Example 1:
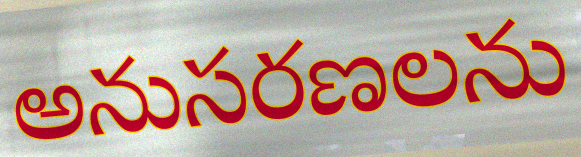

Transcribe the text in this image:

అనుసరణలను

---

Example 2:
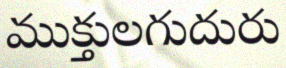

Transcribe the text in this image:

ముక్తులగుదురు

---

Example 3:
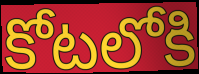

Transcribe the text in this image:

కోటలోకి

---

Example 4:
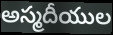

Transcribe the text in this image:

అస్మదీయుల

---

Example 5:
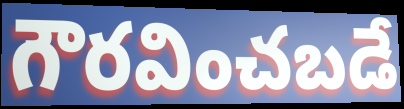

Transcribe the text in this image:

గౌరవించబడే